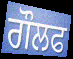
ਗੌਲਫ